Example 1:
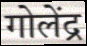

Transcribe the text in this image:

गोलेंद्र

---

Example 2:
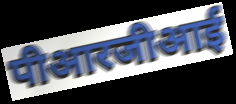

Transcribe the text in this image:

पीआरजीआई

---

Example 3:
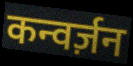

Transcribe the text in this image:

कन्वर्ज़न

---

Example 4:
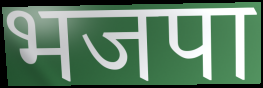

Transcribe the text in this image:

भजपा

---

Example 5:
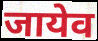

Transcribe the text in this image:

जायेव